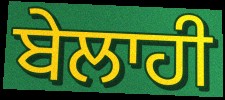
ਬੇਲਾਹੀ